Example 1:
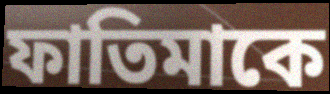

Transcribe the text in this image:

ফাতিমাকে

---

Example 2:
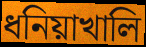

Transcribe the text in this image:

ধনিয়াখালি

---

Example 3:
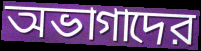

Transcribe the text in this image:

অভাগাদের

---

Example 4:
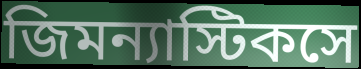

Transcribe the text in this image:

জিমন্যাস্টিকসে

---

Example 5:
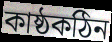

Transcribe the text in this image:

কাষ্ঠকঠিন